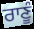
ਰਾਣੂੰ